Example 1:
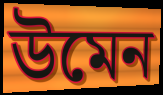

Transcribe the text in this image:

উমেন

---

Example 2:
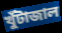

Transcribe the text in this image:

খুঁটাজাল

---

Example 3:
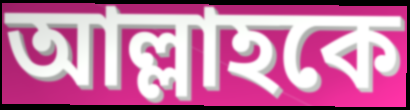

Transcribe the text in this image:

আল্লাহকে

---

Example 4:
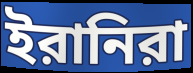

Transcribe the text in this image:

ইরানিরা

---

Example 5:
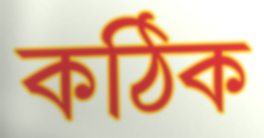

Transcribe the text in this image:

কঠিক